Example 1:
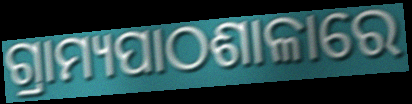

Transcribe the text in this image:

ଗ୍ରାମ୍ୟପାଠଶାଳାରେ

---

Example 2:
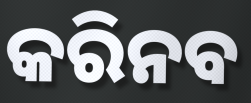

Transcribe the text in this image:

କରିନବ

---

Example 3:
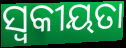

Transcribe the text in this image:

ସ୍ଵକୀୟତା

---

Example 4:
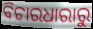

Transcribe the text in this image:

ବିଚାରଧାରାରୁ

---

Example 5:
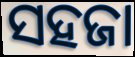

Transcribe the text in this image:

ସହଜା